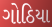
ગોઠિયા